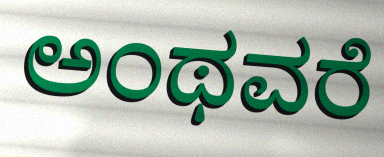
ಅಂಥವರೆ